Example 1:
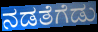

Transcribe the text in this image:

ನಡತೆಗೆಡು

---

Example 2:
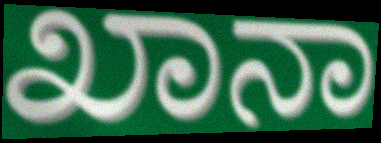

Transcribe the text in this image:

ಖಾನಾ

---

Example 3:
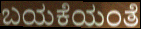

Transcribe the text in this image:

ಬಯಕೆಯಂತೆ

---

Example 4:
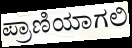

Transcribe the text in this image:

ಪ್ರಾಣಿಯಾಗಲಿ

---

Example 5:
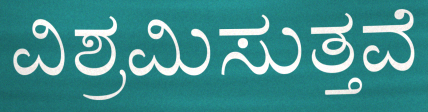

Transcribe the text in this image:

ವಿಶ್ರಮಿಸುತ್ತವೆ